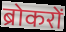
ब्रोकरों